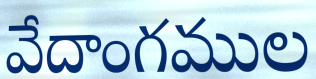
వేదాంగముల